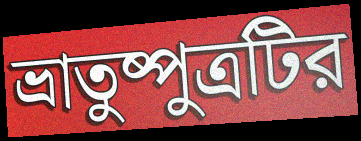
ভ্রাতুষ্পুত্রটির